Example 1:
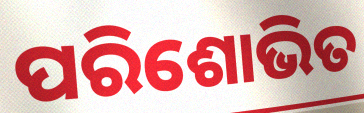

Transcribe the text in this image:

ପରିଶୋଭିତ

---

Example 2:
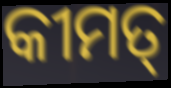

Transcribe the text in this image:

କୀମତ୍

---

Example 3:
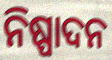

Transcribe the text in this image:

ନିଷ୍ପାଦନ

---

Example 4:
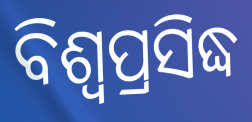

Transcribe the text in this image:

ବିଶ୍ଵପ୍ରସିଦ୍ଧ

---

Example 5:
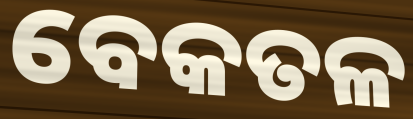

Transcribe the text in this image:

ବେକତଳ